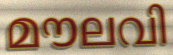
മൗലവി